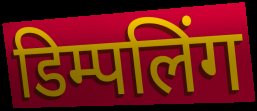
डिम्पलिंग